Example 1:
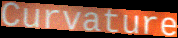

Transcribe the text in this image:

Curvature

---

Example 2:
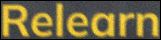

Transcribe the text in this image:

Relearn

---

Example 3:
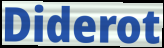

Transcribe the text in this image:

Diderot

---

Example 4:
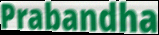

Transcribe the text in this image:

Prabandha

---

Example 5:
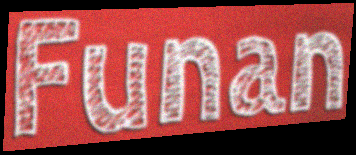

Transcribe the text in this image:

Funan